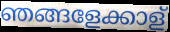
ഞങ്ങളേക്കാള്